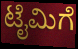
ಟೈಮಿಗೆ